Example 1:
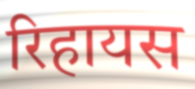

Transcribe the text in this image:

रिहायस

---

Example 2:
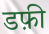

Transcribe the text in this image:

डफ़ी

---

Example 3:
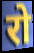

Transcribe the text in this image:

रो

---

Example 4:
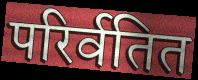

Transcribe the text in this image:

परिर्वतित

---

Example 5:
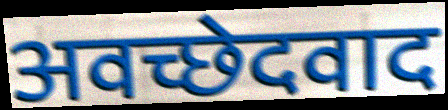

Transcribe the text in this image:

अवच्छेदवाद